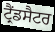
ਟ੍ਰੈਂਡਸੈਟਰ